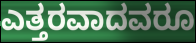
ಎತ್ತರವಾದವರೂ